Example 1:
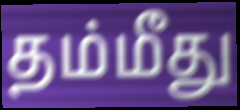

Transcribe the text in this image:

தம்மீது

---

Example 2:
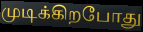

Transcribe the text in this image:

முடிக்கிறபோது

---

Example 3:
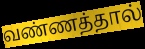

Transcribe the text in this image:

வண்ணத்தால்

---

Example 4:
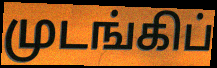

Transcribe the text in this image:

முடங்கிப்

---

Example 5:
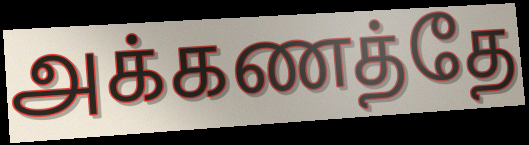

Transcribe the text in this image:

அக்கணத்தே